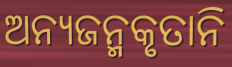
ଅନ୍ଯଜନ୍ମକୃତାନି